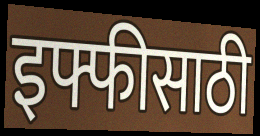
इफ्फीसाठी